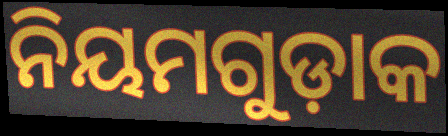
ନିୟମଗୁଡ଼ାକ